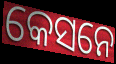
କେସନେ